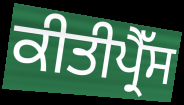
ਕੀਤੀਪ੍ਰੈੱਸ